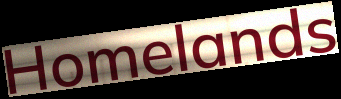
Homelands